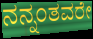
ನನ್ನಂತವರೇ